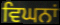
ਵਿਘਨਾਂ